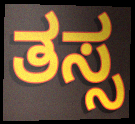
ತಸ್ಸ